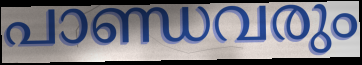
പാണ്ഡവരും